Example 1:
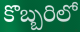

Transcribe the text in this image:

కొబ్బరిలో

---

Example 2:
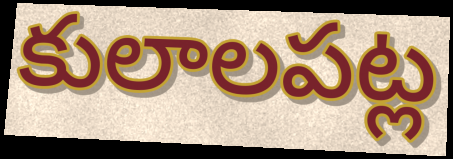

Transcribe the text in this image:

కులాలపట్ల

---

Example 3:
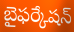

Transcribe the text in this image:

బైఫర్కేషన్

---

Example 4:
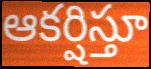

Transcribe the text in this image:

ఆకర్షిస్తూ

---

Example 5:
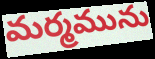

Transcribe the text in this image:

మర్మమును